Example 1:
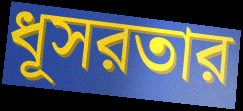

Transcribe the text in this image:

ধূসরতার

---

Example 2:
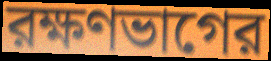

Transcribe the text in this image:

রক্ষণভাগের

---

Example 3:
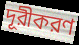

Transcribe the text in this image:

দূরীকরণ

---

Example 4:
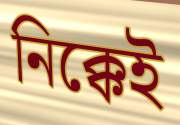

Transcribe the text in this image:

নিক্কেই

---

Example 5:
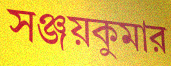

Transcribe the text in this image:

সঞ্জয়কুমার